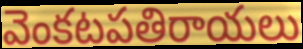
వెంకటపతిరాయలు